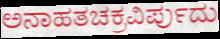
ಅನಾಹತಚಕ್ರವಿರ್ಪುದು